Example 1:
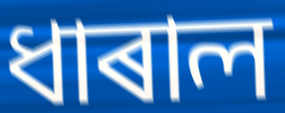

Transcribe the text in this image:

ধাৰাল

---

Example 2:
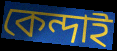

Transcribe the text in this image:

কেন্দাই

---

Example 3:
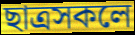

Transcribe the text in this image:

ছাত্ৰসকলে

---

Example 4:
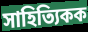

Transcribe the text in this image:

সাহিত্যিকক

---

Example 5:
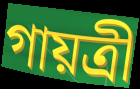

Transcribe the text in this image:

গায়ত্ৰী